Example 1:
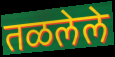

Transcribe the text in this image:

तळलेले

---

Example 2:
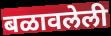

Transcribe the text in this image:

बळावलेली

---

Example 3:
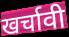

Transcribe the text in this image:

खर्चावी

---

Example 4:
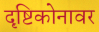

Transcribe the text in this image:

दृष्टिकोनावर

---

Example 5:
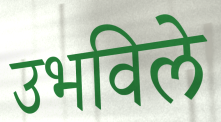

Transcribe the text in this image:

उभविले